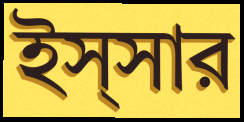
ইস্সার